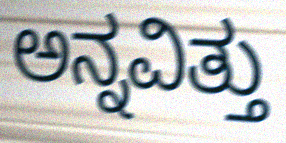
ಅನ್ನವಿತ್ತು